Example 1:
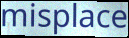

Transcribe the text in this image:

misplace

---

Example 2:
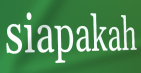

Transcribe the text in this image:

siapakah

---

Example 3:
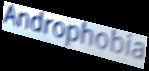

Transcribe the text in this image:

Androphobia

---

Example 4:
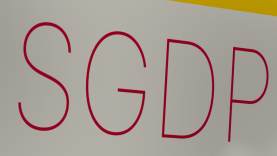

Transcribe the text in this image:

SGDP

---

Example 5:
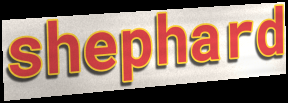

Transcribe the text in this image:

shephard